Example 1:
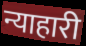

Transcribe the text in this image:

न्याहारी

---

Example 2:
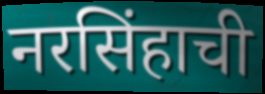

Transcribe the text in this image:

नरसिंहाची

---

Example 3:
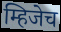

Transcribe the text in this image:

म्हिजेच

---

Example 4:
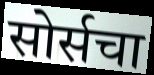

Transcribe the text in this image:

सोर्सचा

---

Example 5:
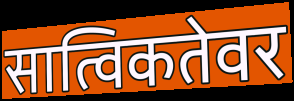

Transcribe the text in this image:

सात्विकतेवर